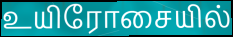
உயிரோசையில்